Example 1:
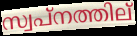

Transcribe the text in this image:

സ്വപ്നത്തില്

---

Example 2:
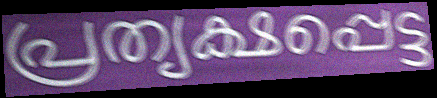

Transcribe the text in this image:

പ്രത്യക്ഷപ്പെട്ട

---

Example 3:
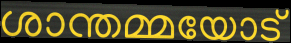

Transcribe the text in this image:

ശാന്തമ്മയോട്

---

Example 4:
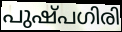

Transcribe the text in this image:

പുഷ്പഗിരി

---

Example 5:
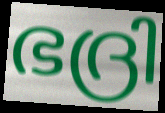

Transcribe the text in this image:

ഭദ്രി